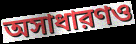
অসাধারণও